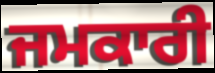
ਜਮਕਾਰੀ